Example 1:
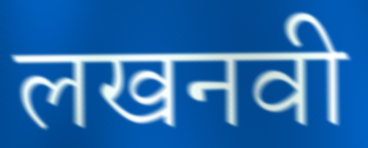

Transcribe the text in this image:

लखनवी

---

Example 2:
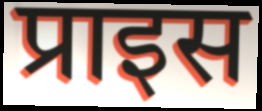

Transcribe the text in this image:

प्राइस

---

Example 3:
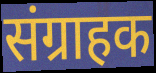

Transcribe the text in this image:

संग्राहक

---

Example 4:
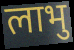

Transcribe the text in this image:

लाभु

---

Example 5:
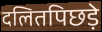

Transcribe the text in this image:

दलितपिछड़े